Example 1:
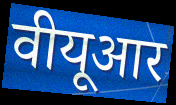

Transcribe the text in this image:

वीयूआर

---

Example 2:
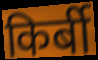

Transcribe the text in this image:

किर्बी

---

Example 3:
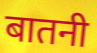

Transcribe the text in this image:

बातनी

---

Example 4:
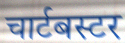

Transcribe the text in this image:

चार्टबस्टर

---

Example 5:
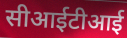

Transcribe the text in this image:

सीआईटीआई